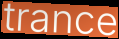
trance